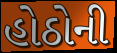
હોઠોની